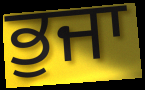
ਭੁਜਾ